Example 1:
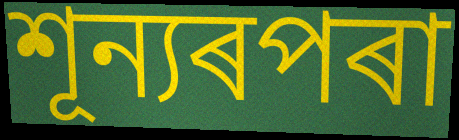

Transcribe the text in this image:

শূন্যৰপৰা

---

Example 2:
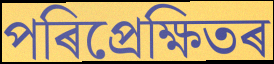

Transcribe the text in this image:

পৰিপ্ৰেক্ষিতৰ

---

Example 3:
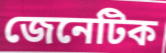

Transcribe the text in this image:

জেনেটিক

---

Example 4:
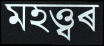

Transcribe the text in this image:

মহত্ত্বৰ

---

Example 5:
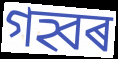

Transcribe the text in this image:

গহ্বৰ